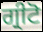
ਗ੍ਰੀਟੋ